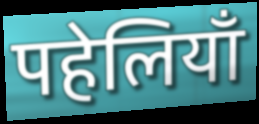
पहेलियाँ